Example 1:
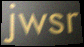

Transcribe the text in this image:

jwsr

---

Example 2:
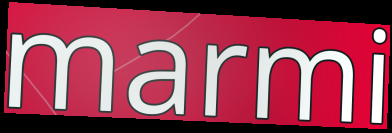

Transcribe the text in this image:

marmi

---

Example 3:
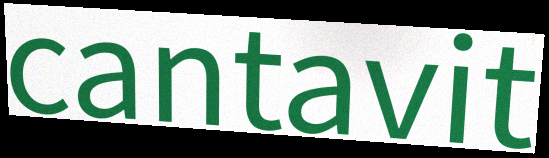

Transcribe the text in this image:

cantavit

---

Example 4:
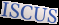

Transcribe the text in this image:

ISCUS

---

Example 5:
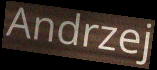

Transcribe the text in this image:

Andrzej